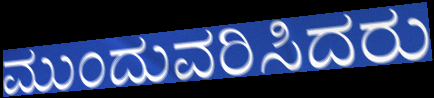
ಮುಂದುವರಿಸಿದರು